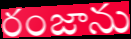
రంజాను